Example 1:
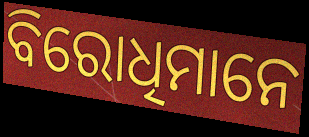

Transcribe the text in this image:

ବିରୋଧିମାନେ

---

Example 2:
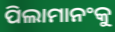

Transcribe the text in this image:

ପିଲାମାନଂକୁ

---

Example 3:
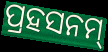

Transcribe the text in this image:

ପ୍ରହସନମ୍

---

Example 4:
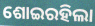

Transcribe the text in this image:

ଶୋଇରହିଲା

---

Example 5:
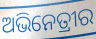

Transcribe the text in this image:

ଅଭିନେତ୍ରୀର